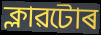
ক্লাৱটোৰ